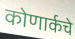
कोणार्कचे